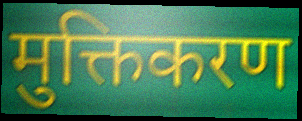
मुक्तिकरण